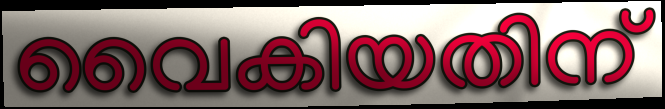
വൈകിയതിന്